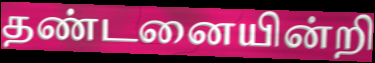
தண்டனையின்றி